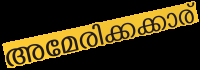
അമേരിക്കക്കാര്